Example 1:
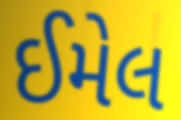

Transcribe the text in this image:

ઈમેલ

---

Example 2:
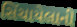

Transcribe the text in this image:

સિંચાયેલાની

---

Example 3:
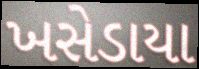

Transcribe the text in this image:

ખસેડાયા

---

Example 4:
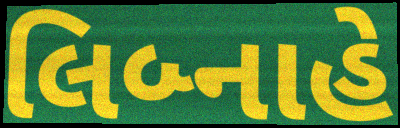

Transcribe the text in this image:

લિબ્નાહે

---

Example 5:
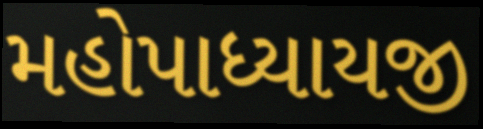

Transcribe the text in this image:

મહોપાધ્યાયજી